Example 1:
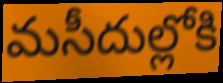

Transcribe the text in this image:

మసీదుల్లోకి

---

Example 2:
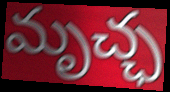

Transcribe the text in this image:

మృచ్ఛ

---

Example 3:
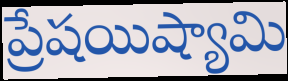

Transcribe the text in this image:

ప్రేషయిష్యామి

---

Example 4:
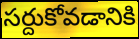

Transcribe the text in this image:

సర్దుకోవడానికి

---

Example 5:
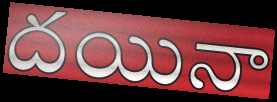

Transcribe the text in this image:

దయినా